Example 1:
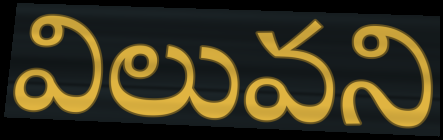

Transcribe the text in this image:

విలువని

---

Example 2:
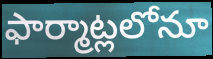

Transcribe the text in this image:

ఫార్మాట్లలోనూ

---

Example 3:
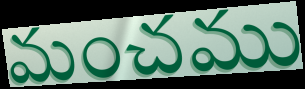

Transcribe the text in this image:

మంచము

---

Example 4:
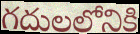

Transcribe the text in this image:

గదులలోనికి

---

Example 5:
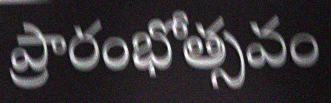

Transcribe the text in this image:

ప్రారంభోత్సవం